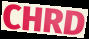
CHRD